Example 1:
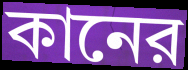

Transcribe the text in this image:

কানের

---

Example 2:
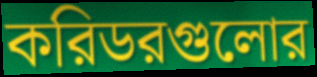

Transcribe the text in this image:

করিডরগুলোর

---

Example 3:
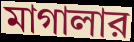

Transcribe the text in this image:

মাগালার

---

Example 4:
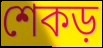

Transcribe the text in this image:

শেকড়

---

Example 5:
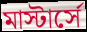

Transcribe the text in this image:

মাস্টার্সে